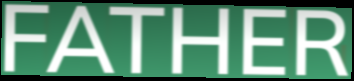
FATHER